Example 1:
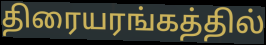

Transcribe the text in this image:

திரையரங்கத்தில்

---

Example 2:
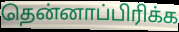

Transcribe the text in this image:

தென்னாப்பிரிக்க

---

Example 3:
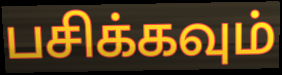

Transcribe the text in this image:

பசிக்கவும்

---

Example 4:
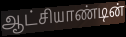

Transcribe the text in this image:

ஆட்சியாண்டின்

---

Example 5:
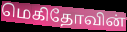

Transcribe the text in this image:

மெகிதோவின்